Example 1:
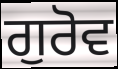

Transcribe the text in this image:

ਗੁਰੋਵ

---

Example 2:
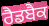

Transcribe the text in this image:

ਰੈਡਬੈਕ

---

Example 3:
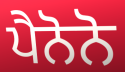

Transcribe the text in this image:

ਪੈਨੋਨੋ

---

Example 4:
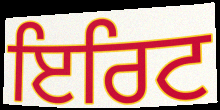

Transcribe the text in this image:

ਇਰਿਟ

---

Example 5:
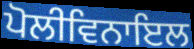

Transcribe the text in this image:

ਪੋਲੀਵਿਨਾਇਲ